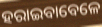
ହରାଇବାବେଳେ